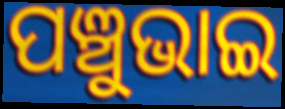
ପଞ୍ଚୁଭାଇ